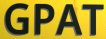
GPAT